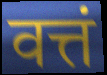
वत्तं